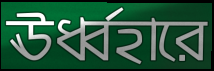
ঊর্ধ্বহারে